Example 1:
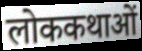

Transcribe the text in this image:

लोककथाओं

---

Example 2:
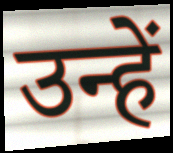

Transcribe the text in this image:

उन्‍हें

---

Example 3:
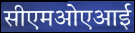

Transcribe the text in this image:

सीएमओएआई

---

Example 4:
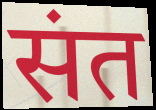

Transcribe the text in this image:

संत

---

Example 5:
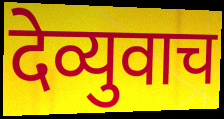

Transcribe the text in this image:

देव्युवाच